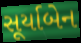
સૂર્યાબેન